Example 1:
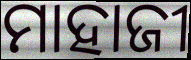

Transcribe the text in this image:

ମାହାଜୀ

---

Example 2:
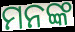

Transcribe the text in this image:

ମନଙ୍କ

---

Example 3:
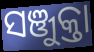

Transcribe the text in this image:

ସଞ୍ଜୁକ୍ତା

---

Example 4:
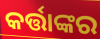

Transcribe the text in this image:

କର୍ତ୍ତାଙ୍କର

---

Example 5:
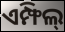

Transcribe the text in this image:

ଏମ୍ଫିଲ୍